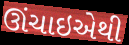
ઊંચાઇએથી